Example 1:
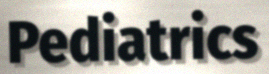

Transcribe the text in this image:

Pediatrics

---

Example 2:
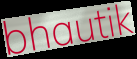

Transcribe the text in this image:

bhautik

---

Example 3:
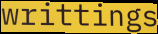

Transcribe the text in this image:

writtings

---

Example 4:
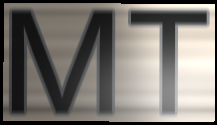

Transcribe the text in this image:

MT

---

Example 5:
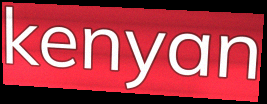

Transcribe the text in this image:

kenyan